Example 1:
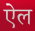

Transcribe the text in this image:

ऐल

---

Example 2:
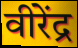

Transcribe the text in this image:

वीरेंद्र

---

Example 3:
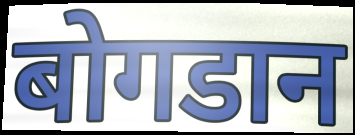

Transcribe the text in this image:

बोगडान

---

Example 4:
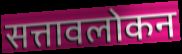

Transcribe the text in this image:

सत्तावलोकन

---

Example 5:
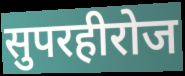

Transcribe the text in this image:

सुपरहीरोज